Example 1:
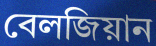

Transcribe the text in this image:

বেলজিয়ান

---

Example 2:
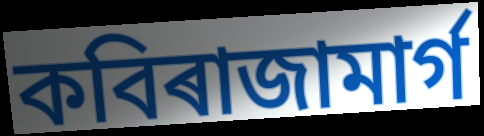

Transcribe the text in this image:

কবিৰাজামাৰ্গ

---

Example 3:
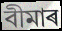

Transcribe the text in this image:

বীমাৰ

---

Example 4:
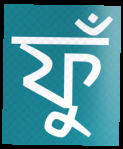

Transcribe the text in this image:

ফুঁ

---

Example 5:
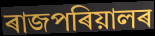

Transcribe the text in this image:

ৰাজপৰিয়ালৰ